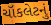
ચૉકલેટનું